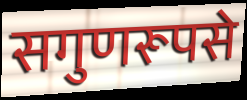
सगुणरूपसे